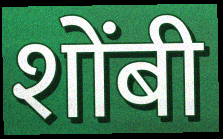
शोंबी